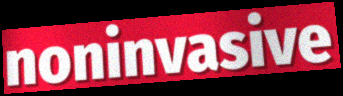
noninvasive